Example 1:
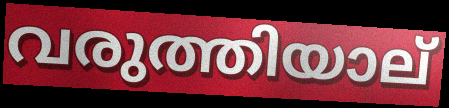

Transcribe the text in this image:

വരുത്തിയാല്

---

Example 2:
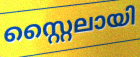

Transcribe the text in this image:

സ്റ്റൈലായി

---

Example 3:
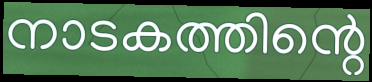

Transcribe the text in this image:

നാടകത്തിന്റെ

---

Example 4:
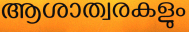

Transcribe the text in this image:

ആശാത്വരകളും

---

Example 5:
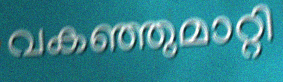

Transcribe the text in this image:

വകഞ്ഞുമാറ്റി